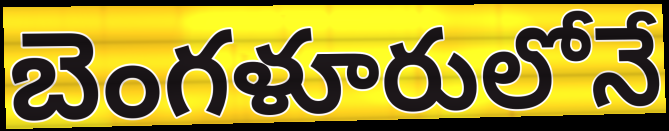
బెంగళూరులోనే